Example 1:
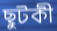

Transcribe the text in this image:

ছুটকী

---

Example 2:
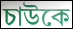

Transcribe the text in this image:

চাউকে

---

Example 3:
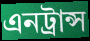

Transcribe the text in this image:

এনট্রান্স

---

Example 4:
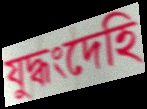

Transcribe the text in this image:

যুদ্ধংদেহি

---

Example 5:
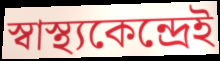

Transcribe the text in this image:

স্বাস্থ্যকেন্দ্রেই